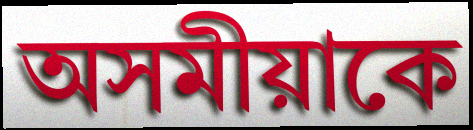
অসমীয়াকে